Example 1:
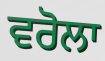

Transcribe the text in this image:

ਵਰੋਲਾ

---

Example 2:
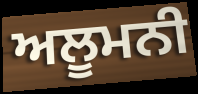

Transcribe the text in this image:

ਅਲੂਮਨੀ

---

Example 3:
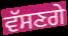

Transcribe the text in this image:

ਵੱਸਣਗੇ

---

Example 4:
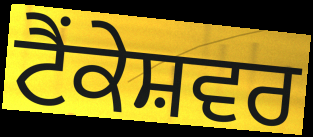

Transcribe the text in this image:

ਟੈਂਕੇਸ਼ਵਰ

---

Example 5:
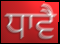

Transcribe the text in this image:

ਧਾਵੈ